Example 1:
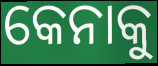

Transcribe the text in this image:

କେନାକୁ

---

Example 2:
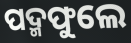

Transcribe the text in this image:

ପଦ୍ମଫୁଲେ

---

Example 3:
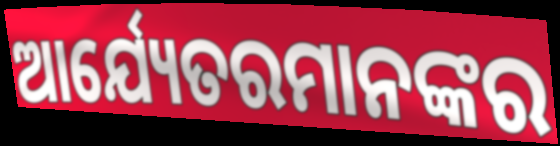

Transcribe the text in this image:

ଆର୍ଯ୍ୟେତରମାନଙ୍କର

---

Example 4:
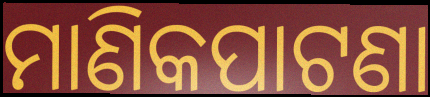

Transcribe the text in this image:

ମାଣିକପାଟଣା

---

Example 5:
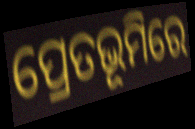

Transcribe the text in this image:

ପ୍ରେତଭୂମିରେ